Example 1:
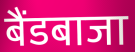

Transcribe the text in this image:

बैंडबाजा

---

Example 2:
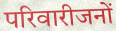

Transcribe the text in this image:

परिवारीजनों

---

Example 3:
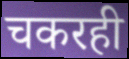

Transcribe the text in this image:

चकरही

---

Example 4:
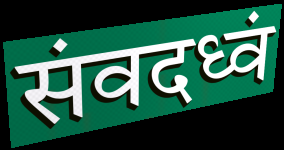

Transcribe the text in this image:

संवदध्वं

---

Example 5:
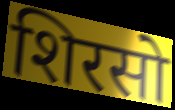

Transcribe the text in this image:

शिरसो